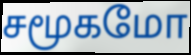
சமூகமோ